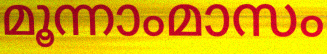
മൂന്നാംമാസം